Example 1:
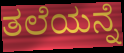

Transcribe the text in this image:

ತಲೆಯನ್ನೆ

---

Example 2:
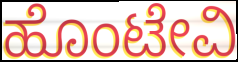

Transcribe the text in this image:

ಹೊಂಟೇವಿ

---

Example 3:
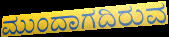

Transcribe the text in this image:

ಮುಂದಾಗದಿರುವ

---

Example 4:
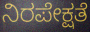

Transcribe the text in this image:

ನಿರಪೇಕ್ಷತೆ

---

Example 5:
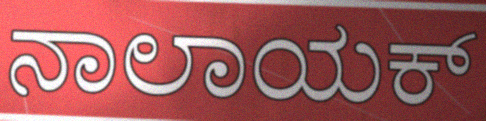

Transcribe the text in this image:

ನಾಲಾಯಕ್